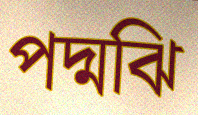
পদ্মঝি